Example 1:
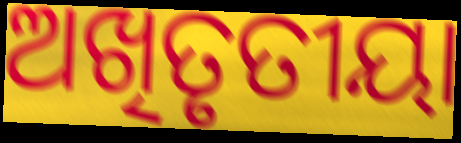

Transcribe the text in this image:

ଅଖିତୃତୀୟା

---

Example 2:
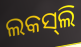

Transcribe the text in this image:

ଲକସ୍‍ଲି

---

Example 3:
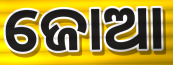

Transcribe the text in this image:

ଜୋଆ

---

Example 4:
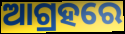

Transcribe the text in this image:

ଆଗ୍ରହରେ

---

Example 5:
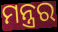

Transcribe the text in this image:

ମନ୍ତ୍ରର